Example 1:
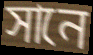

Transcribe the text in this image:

সানে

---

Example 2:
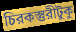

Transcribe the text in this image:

চিরকস্তুরীটুকু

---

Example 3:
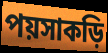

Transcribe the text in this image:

পয়সাকড়ি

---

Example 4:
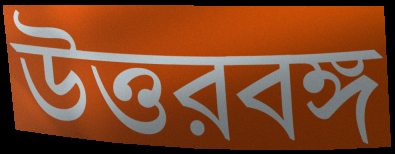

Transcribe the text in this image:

উত্তরবঙ্গ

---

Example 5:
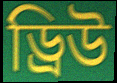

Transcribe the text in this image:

ড্রিউ